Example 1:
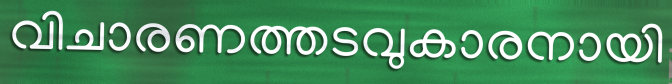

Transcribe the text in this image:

വിചാരണത്തടവുകാരനായി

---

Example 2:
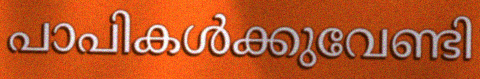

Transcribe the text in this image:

പാപികൾക്കുവേണ്ടി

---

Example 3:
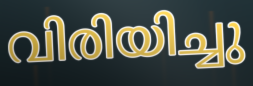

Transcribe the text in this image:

വിരിയിച്ചു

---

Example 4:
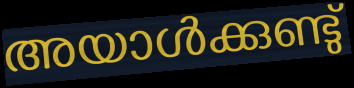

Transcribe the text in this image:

അയാൾക്കുണ്ടു്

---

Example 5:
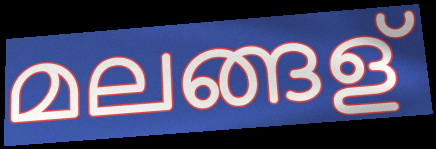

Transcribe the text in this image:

മലങ്ങള്